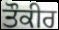
ਤੌਕੀਰ